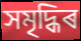
সমৃদ্ধিৰ